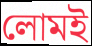
লোমই